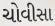
ચોવીસા